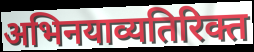
अभिनयाव्यतिरिक्त